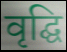
वृद्घि